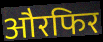
औरफिर